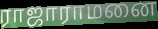
ராஜாராமனை